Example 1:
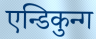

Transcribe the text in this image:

एन्डिकुन्ग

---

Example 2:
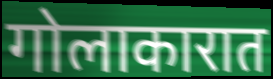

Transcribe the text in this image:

गोलाकारात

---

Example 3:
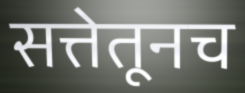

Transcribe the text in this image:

सत्तेतूनच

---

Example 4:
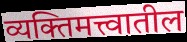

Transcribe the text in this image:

व्यक्तिमत्त्वातील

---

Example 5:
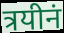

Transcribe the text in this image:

त्रयीनं